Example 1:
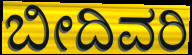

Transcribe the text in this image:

ಬೀದಿವರಿ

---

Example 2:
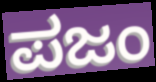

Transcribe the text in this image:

ಪಜಂ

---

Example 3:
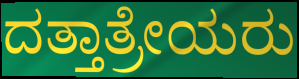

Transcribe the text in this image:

ದತ್ತಾತ್ರೇಯರು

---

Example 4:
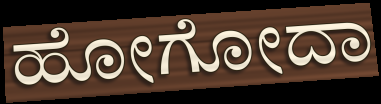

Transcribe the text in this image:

ಹೋಗೋದಾ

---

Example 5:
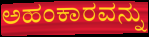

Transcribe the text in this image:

ಅಹಂಕಾರವನ್ನು